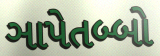
ઞાપેતબ્બો